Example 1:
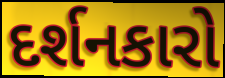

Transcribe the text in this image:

દર્શનકારો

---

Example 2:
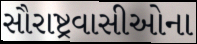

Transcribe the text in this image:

સૌરાષ્ટ્રવાસીઓના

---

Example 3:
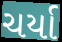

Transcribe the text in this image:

ચર્યા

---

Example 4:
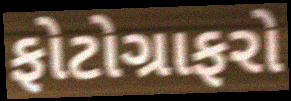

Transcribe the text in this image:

ફોટોગ્રાફરો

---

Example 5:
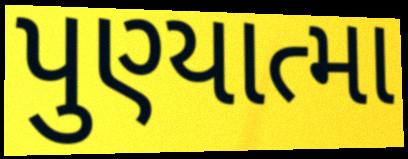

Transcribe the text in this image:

પુણ્યાત્મા